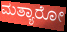
ಮತ್ಯಾರೋ